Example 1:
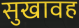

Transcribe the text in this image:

सुखावह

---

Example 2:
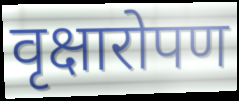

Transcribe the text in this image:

वृक्षारोपण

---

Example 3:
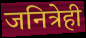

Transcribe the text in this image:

जनित्रेही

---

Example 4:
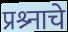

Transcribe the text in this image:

प्रश्र्नाचे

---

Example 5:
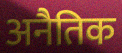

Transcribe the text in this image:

अनैतिक